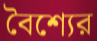
বৈশ্যের